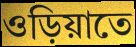
ওড়িয়াতে